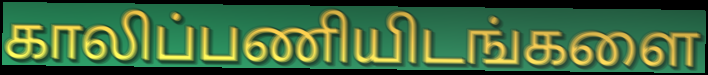
காலிப்பணியிடங்களை